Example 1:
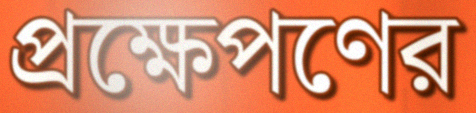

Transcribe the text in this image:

প্রক্ষেপণের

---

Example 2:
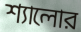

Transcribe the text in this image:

শ্যালোর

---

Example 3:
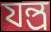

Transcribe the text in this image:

যন্ত্র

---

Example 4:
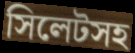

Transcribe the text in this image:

সিলেটসহ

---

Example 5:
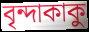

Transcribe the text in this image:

বৃন্দাকাকু